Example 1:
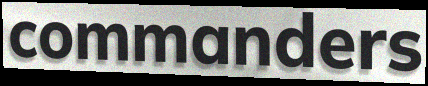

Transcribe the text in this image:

commanders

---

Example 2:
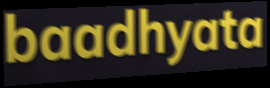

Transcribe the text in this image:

baadhyata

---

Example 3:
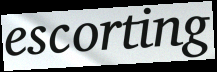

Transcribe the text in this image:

escorting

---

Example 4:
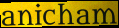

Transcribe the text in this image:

anicham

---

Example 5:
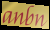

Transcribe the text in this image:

anbn